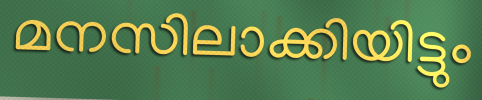
മനസിലാക്കിയിട്ടും